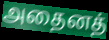
அதைனத்